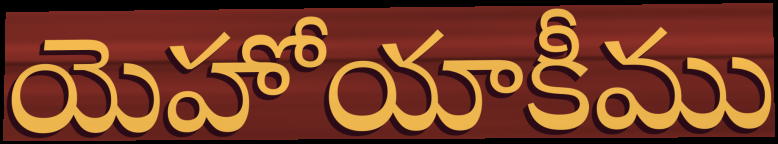
యెహోయాకీము